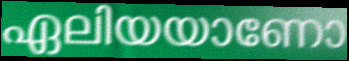
ഏലിയയാണോ